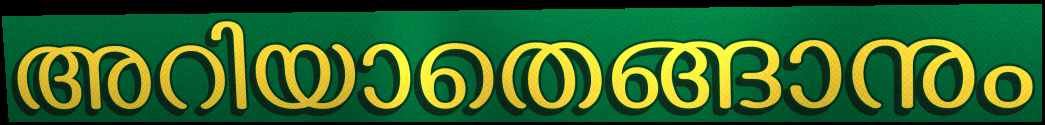
അറിയാതെങ്ങാനും